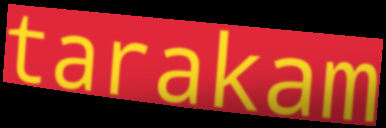
tarakam